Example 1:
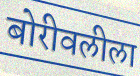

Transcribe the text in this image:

बोरीवलीला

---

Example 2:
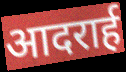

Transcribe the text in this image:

आदरार्ह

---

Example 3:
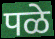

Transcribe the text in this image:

पळे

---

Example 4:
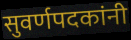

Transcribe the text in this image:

सुवर्णपदकांनी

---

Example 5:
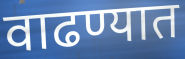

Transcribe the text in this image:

वाढण्यात